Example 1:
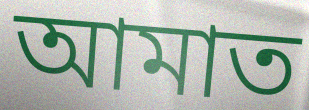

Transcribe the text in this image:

আমাত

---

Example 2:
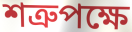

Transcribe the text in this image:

শত্রুপক্ষে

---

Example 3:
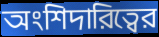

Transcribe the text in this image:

অংশিদারিত্বের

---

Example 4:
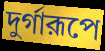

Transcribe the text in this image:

দুর্গারূপে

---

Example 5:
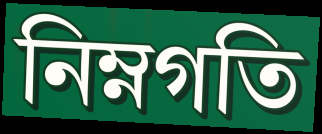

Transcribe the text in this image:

নিম্নগতি